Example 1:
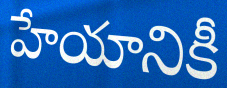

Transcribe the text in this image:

హేయానికీ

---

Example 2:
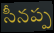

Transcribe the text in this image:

సీనప్ప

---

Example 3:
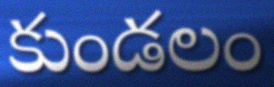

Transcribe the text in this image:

కుండలం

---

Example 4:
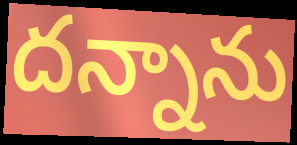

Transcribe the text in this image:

దన్నాను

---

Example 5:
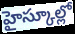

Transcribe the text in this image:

హైస్కూల్లో